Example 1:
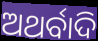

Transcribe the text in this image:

ଅଥର୍ବାଦି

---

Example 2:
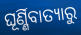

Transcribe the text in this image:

ଘୂର୍ଣ୍ଣିବାତ୍ୟାରୁ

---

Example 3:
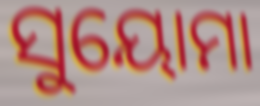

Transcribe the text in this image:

ସୁୟୋମା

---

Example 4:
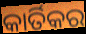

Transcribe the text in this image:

କାର୍ତିକର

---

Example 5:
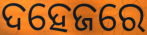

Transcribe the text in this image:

ଦହେଜରେ